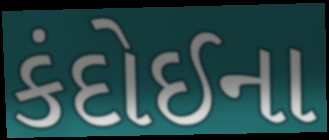
કંદોઈના